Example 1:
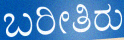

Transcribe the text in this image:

ಬರೀತಿರು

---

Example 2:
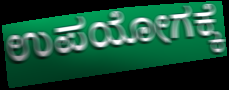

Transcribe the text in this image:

ಉಪಯೋಗಕ್ಕೆ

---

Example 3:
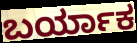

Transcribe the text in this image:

ಬರ್ಯಾಕ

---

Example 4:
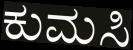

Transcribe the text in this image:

ಕುಮಸಿ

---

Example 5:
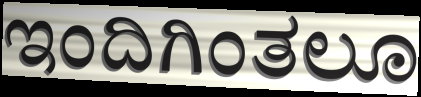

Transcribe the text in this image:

ಇಂದಿಗಿಂತಲೂ